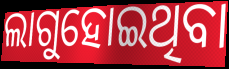
ଲାଗୁହୋଇଥିବା